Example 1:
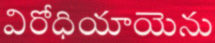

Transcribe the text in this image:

విరోధియాయెను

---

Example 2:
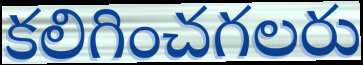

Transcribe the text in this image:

కలిగించగలరు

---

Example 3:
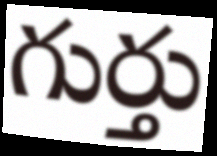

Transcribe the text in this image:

గుర్తు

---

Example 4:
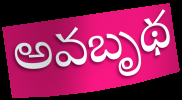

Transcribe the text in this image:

అవబృథ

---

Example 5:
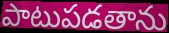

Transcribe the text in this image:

పాటుపడతాను